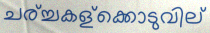
ചര്ച്ചകള്ക്കൊടുവില്